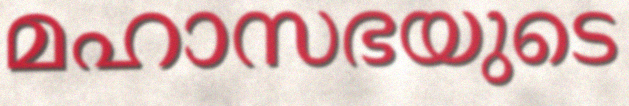
മഹാസഭയുടെ